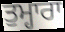
ਤੁਮ੍ਹਾਰਾ